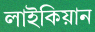
লাইকিয়ান